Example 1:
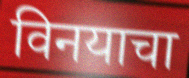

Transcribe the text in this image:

विनयाचा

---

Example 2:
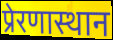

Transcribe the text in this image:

प्रेरणास्थान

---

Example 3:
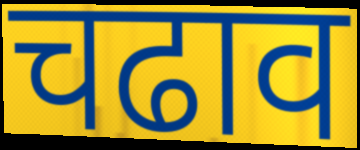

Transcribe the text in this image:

चढाव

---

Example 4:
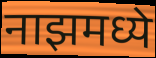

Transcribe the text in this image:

नाझमध्ये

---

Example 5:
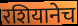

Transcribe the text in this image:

रशियानेच